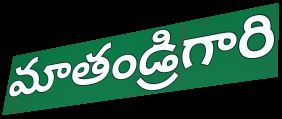
మాతండ్రిగారి